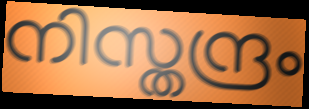
നിസ്തന്ദ്രം